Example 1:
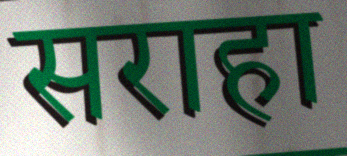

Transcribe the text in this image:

सराहा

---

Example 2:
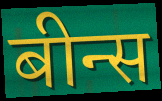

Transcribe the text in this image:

बीन्स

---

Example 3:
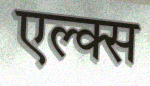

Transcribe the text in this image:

एल्क्स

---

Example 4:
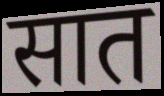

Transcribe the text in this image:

सात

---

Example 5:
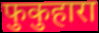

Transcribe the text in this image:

फुकुहारा